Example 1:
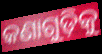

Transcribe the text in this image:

କଣାଗୁଡ଼ିକୁ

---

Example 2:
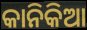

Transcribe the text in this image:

କାନିକିଆ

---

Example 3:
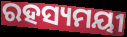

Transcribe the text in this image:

ରହସ୍ୟମୟୀ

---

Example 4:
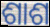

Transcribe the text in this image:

ଶାଶ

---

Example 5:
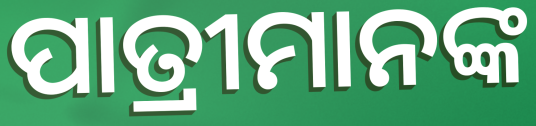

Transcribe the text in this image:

ପାତ୍ରୀମାନଙ୍କ